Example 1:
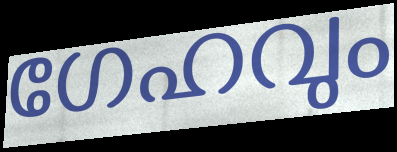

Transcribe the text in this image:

ഗേഹവും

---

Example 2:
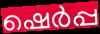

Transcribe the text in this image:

ഷെർപ്പ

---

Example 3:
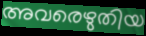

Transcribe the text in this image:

അവരെഴുതിയ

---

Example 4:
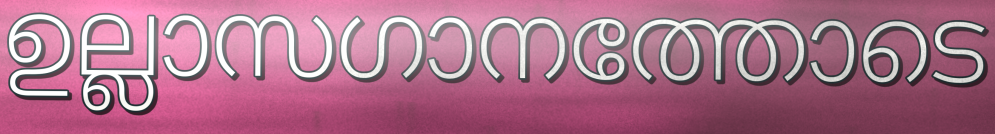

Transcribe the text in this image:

ഉല്ലാസഗാനത്തോടെ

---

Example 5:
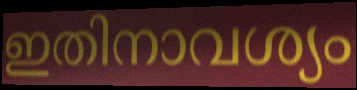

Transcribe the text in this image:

ഇതിനാവശ്യം